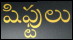
షిఫ్టులు